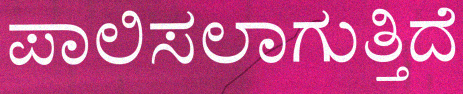
ಪಾಲಿಸಲಾಗುತ್ತಿದೆ